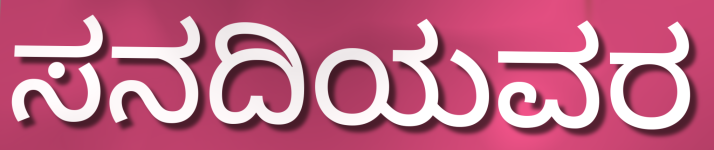
ಸನದಿಯವರ